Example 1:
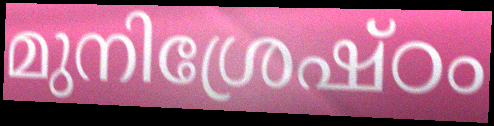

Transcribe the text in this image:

മുനിശ്രേഷ്ഠം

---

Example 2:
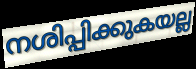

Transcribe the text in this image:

നശിപ്പിക്കുകയല്ല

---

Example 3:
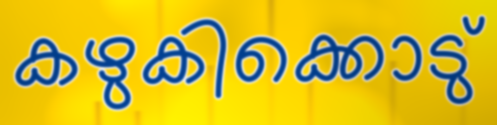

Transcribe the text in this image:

കഴുകിക്കൊടു്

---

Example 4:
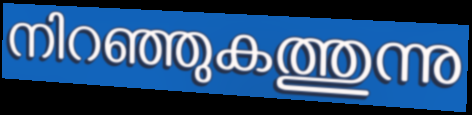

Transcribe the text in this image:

നിറഞ്ഞുകത്തുന്നു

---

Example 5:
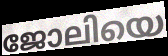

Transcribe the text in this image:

ജോലിയെ